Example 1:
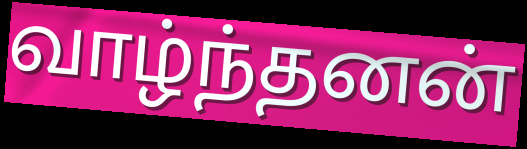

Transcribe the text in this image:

வாழ்ந்தனன்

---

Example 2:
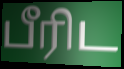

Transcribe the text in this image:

பீரிட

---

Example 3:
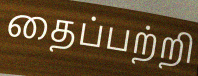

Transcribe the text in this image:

தைப்பற்றி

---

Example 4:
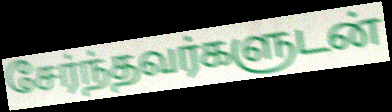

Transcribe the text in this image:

சேர்ந்தவர்களுடன்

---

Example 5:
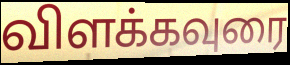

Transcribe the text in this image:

விளக்கவுரை